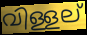
വിള്ളല്